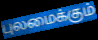
புலமைக்கும்